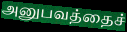
அனுபவத்தைச்